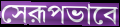
সেরূপভাবে